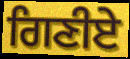
ਗਿਣੀਏ